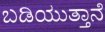
ಬಡಿಯುತ್ತಾನೆ